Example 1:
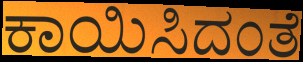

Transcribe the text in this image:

ಕಾಯಿಸಿದಂತೆ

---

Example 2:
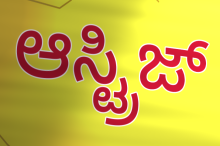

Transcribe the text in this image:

ಆಸ್ಟ್ರಿಜ್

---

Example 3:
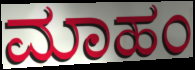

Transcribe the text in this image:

ಮಾಹಂ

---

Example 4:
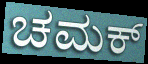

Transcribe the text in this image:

ಚಮಕ್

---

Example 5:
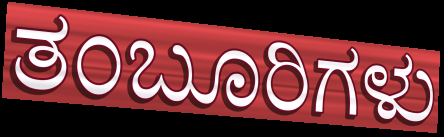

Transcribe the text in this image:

ತಂಬೂರಿಗಳು